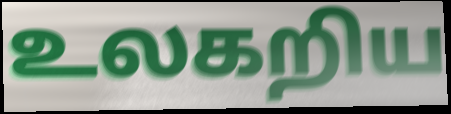
உலகறிய